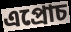
এপ্রোচ